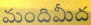
మందిమీద